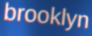
brooklyn